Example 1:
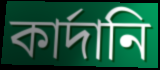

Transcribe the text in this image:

কার্দানি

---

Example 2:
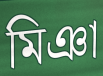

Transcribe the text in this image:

মিঞা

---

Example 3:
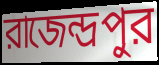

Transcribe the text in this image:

রাজেন্দ্রপুর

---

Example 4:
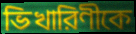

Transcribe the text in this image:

ভিখারিণীকে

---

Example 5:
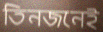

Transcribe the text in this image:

তিনজনেই